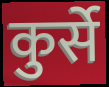
कुर्से